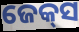
ଜେକ୍‍ସ